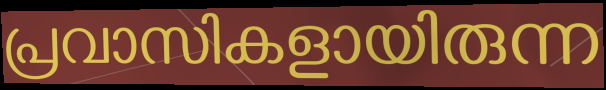
പ്രവാസികളായിരുന്ന